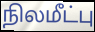
நிலமீட்பு